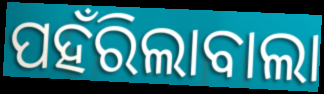
ପହଁରିଲାବାଲା